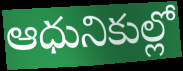
ఆధునికుల్లో